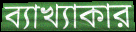
ব্যাখ্যাকার